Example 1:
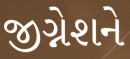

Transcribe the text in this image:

જીગ્નેશને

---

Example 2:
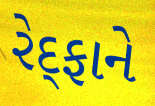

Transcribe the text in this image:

રેદ્ફાને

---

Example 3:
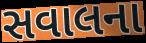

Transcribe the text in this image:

સવાલના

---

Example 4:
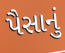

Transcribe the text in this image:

પૈસાનું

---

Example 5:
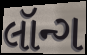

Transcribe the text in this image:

લૉન્ગ